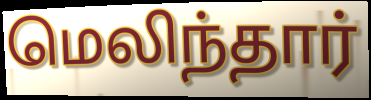
மெலிந்தார்